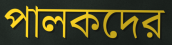
পালকদের